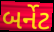
બર્નેટ